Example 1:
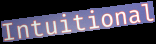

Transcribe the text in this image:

Intuitional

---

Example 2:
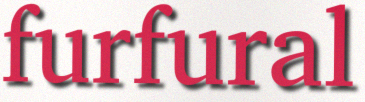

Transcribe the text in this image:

furfural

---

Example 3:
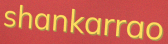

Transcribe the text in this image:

shankarrao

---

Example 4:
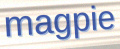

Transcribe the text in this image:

magpie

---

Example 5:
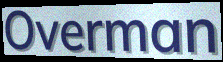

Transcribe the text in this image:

Overman